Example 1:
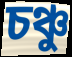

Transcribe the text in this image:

চঞ্চু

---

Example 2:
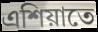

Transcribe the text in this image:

এশিয়াতে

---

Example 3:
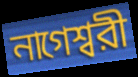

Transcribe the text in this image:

নাগেশ্বরী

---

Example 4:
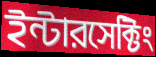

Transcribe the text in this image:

ইন্টারসেক্টিং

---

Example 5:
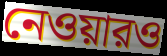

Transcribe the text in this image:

নেওয়ারও